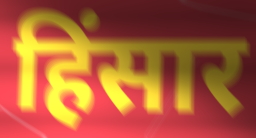
हिंसार